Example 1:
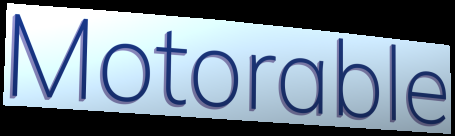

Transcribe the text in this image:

Motorable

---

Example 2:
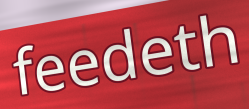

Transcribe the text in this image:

feedeth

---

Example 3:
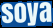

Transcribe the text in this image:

soya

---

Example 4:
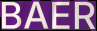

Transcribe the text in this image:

BAER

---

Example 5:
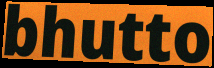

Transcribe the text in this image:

bhutto